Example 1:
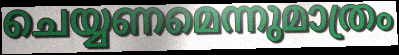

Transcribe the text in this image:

ചെയ്യണമെന്നുമാത്രം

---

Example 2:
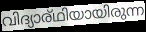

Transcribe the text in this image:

വിദ്യാര്ഥിയായിരുന്ന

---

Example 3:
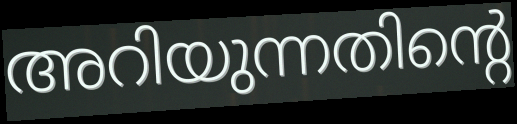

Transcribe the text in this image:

അറിയുന്നതിന്റെ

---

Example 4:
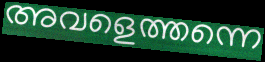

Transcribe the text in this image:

അവളെത്തന്നെ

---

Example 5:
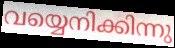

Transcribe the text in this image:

വയ്യെനിക്കിന്നു